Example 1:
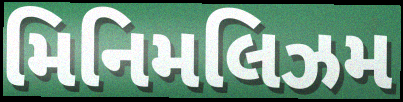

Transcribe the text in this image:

મિનિમલિઝમ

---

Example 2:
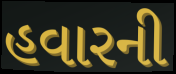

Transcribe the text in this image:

હવારની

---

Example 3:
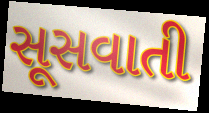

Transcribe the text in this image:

સૂસવાતી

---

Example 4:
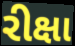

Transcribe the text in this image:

રીક્ષા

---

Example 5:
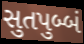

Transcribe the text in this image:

સુતપુબ્બં